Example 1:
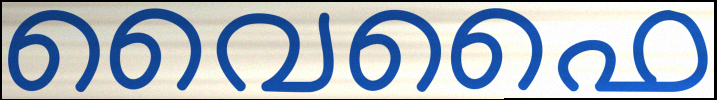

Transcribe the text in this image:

വൈഫൈ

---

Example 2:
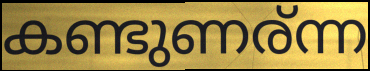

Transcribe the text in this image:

കണ്ടുണര്ന്ന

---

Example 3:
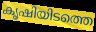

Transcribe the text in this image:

കൃഷിയിടത്തെ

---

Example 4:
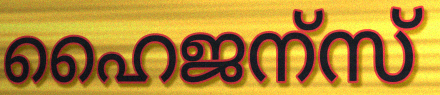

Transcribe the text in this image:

ഹൈജന്സ്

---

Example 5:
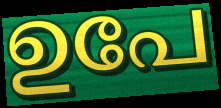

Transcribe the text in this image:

ഉപേ